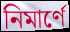
নিমার্ণে